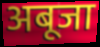
अबूजा